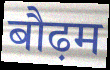
बौढ़म